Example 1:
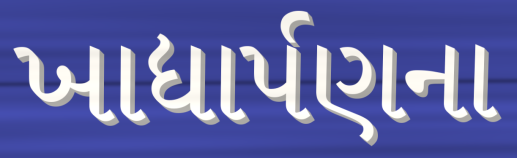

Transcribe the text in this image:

ખાદ્યાર્પણના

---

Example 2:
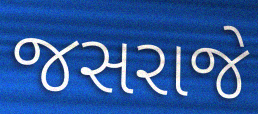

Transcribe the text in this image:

જસરાજે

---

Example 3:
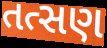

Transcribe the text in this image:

તત્સણ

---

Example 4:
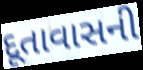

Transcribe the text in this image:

દૂતાવાસની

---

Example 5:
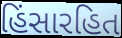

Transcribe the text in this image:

હિંસારહિત